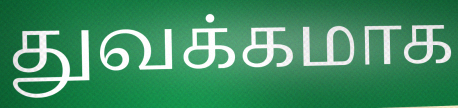
துவக்கமாக